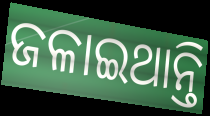
ଜଳାଇଥାନ୍ତି